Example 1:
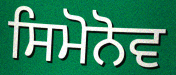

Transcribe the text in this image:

ਸਿਮੋਨੋਵ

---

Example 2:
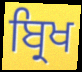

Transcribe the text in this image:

ਬ੍ਰਿਖ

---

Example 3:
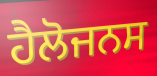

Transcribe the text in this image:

ਹੈਲੋਜਨਸ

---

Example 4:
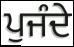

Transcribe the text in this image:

ਪੁਜੰਦੇ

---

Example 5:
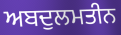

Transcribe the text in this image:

ਅਬਦੁਲਮਤੀਨ